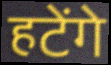
हटेंगे